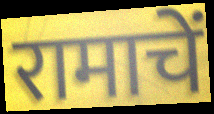
रामाचें